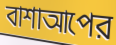
বাশাআপের